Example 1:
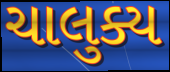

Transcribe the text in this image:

ચાલુક્ય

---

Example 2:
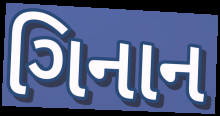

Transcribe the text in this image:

ગિનાન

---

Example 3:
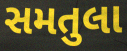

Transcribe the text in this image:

સમતુલા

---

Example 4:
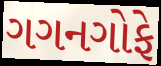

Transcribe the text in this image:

ગગનગોફે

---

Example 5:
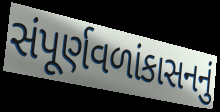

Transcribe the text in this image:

સંપૂર્ણવળાંકાસનનું